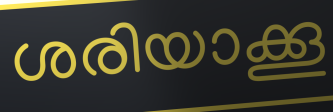
ശരിയാക്കൂ